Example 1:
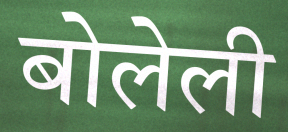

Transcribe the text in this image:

बोलेली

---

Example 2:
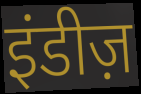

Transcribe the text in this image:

इंडीज़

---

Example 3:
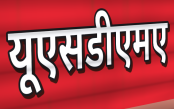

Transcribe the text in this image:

यूएसडीएमए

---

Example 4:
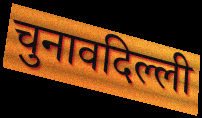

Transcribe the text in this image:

चुनावदिल्ली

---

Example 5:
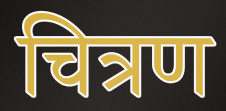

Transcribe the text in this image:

चित्रण